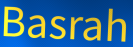
Basrah